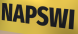
NAPSWI